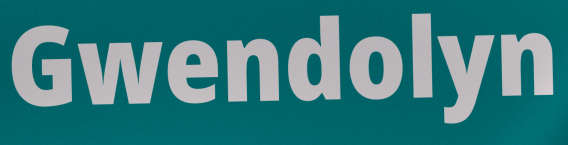
Gwendolyn